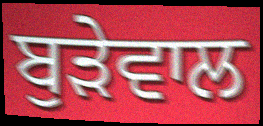
ਬੁੜੇਵਾਲ